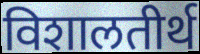
विशालतीर्थ